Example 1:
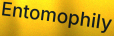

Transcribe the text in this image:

Entomophily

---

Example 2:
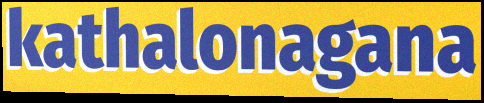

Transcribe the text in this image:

kathalonagana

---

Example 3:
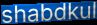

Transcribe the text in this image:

shabdkul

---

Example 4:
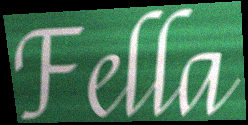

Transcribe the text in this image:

Fella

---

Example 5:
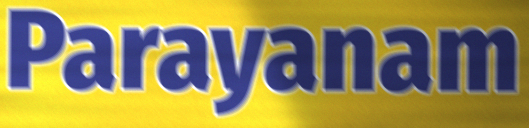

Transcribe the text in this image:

Parayanam